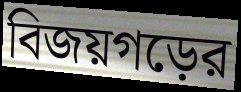
বিজয়গড়ের